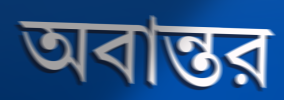
অবান্তর